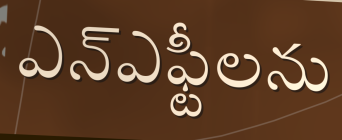
ఎన్ఎఫ్టీలను